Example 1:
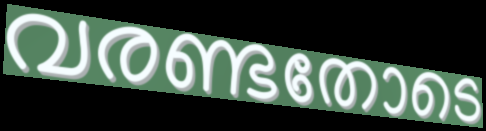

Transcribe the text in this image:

വരണ്ടതോടെ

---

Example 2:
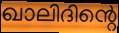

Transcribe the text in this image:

ഖാലിദിന്റെ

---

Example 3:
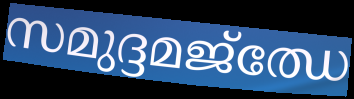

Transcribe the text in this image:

സമുദ്ദമജ്ഝേ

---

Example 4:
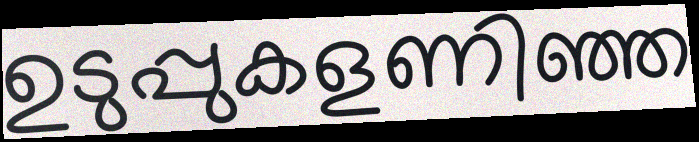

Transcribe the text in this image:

ഉടുപ്പുകളണിഞ്ഞ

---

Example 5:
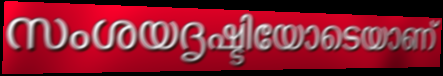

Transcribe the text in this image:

സംശയദൃഷ്ടിയോടെയാണ്